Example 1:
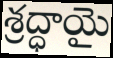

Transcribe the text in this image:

శ్రద్ధాయై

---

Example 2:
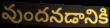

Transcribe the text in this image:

వుందనడానికి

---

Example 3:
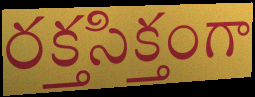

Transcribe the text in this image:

రక్తసిక్తంగా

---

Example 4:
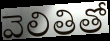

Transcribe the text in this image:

వెలితితో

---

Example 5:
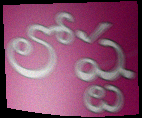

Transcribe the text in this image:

లోష్ట